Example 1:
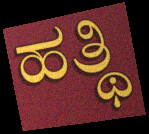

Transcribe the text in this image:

ಹತ್ಥಿ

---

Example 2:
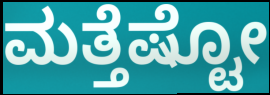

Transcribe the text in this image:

ಮತ್ತೆಷ್ಟೋ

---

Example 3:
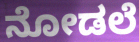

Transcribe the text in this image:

ನೋಡಲೆ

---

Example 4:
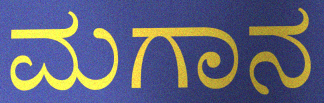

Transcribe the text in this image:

ಮಗಾನ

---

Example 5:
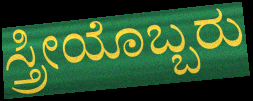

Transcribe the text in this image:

ಸ್ತ್ರೀಯೊಬ್ಬರು